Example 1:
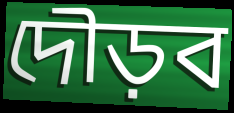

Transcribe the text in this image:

দৌড়ব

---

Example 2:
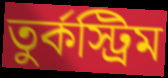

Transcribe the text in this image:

তুর্কস্ট্রিম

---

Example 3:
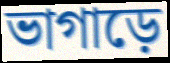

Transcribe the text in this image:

ভাগাড়ে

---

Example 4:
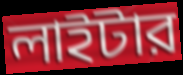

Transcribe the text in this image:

লাইটার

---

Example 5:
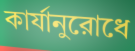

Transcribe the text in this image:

কার্যানুরোধে